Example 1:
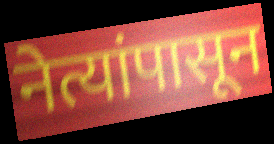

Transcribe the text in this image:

नेत्यांपासून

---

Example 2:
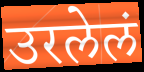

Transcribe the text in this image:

उरलेलं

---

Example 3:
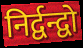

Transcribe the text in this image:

निर्द्वन्द्वो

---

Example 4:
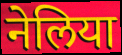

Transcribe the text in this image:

नेलिया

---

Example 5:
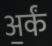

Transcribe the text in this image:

अ॒र्कं